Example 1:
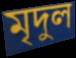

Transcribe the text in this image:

মৃদুল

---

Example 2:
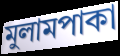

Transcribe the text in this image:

মুলামপাকা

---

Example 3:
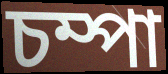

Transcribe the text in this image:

চম্পা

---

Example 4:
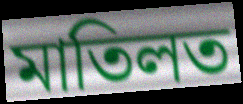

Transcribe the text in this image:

মাতিলত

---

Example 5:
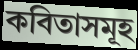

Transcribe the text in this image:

কবিতাসমূহ